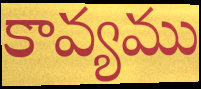
కావ్యము